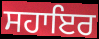
ਸਹਾਇਰ